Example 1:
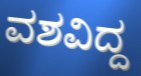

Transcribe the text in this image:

ವಶವಿದ್ದ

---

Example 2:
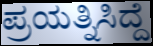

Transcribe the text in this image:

ಪ್ರಯತ್ನಿಸಿದ್ದೆ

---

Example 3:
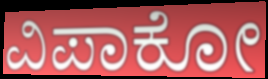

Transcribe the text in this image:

ವಿಪಾಕೋ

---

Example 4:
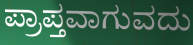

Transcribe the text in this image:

ಪ್ರಾಪ್ತವಾಗುವದು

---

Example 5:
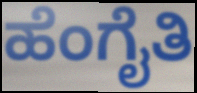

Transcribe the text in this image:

ಹೆಂಗೈತಿ